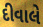
દીવાલે